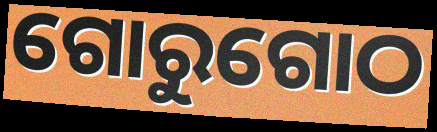
ଗୋରୁଗୋଠ